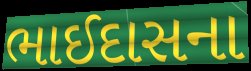
ભાઈદાસના